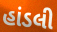
હાંડલી